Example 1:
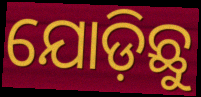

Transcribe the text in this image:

ଯୋଡ଼ିଛୁ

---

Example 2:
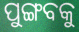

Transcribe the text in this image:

ପୁଙ୍ଗବକୁ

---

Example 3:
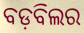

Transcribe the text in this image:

ବଡ଼ବିଲର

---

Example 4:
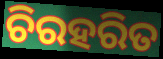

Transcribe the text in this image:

ଚିରହରିତ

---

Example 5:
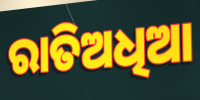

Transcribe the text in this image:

ରାତିଅଧିଆ